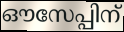
ഔസേപ്പിന്